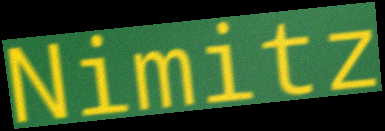
Nimitz